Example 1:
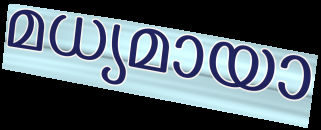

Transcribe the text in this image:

മധ്യമായാ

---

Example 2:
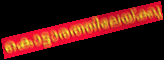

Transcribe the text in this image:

കൊട്ടാരത്തിലേയ്ക്കു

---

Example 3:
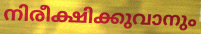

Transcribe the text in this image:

നിരീക്ഷിക്കുവാനും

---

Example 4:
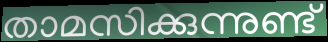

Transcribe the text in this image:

താമസിക്കുന്നുണ്ട്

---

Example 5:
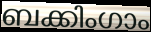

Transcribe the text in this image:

ബക്കിംഗാം